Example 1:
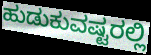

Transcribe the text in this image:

ಹುಡುಕುವಷ್ಟರಲ್ಲಿ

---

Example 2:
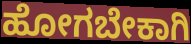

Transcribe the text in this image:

ಹೋಗಬೇಕಾಗಿ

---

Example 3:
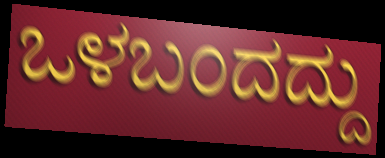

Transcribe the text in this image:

ಒಳಬಂದದ್ದು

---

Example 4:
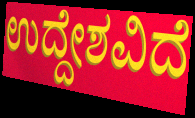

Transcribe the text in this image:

ಉದ್ದೇಶವಿದೆ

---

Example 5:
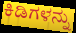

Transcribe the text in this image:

ಕಿಡಿಗಳನ್ನು